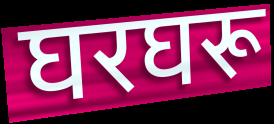
घरघरू